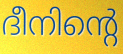
ദീനിന്റെ